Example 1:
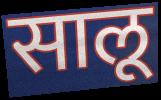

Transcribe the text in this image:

सालू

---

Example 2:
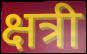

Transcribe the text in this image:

क्षत्री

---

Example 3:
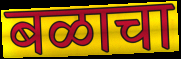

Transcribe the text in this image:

बळाचा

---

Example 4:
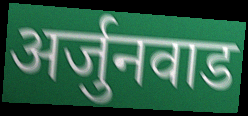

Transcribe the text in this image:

अर्जुनवाड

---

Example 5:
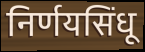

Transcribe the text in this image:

निर्णयसिंधू